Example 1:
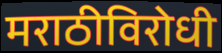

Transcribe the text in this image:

मराठीविरोधी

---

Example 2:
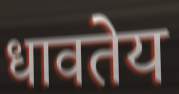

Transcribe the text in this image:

धावतेय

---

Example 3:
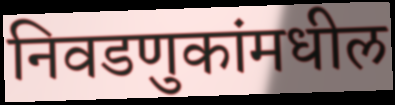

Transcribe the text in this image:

निवडणुकांमधील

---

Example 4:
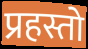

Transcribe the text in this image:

प्रहस्तो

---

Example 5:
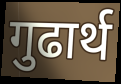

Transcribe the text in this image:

गुढार्थ